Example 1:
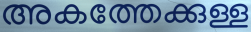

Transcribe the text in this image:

അകത്തേക്കുള്ള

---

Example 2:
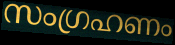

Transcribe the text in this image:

സംഗ്രഹണം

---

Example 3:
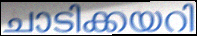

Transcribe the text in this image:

ചാടിക്കയറി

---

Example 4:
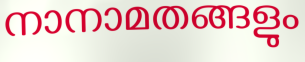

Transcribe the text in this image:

നാനാമതങ്ങളും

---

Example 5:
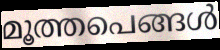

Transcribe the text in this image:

മൂത്തപെങ്ങൾ